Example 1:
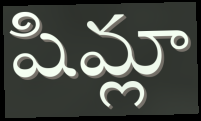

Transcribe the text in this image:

షిమ్లా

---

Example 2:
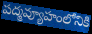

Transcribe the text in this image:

పద్మవ్యూహంలోనికి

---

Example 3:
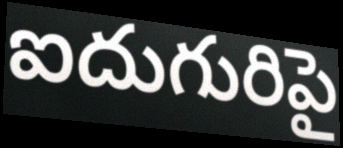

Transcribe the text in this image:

ఐదుగురిపై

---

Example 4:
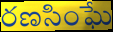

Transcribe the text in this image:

రణసింఘే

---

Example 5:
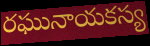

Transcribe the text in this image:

రఘునాయకస్య